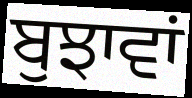
ਬੁਝਾਵਾਂ